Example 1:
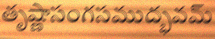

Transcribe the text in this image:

తృష్ణాసంగసముద్భవమ్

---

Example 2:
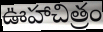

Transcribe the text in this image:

ఊహాచిత్రం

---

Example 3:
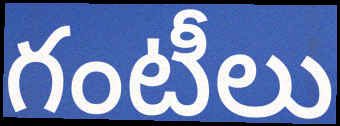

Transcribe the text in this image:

గంటీలు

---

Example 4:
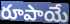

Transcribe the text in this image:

రూపాయే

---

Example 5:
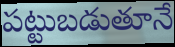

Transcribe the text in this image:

పట్టుబడుతూనే